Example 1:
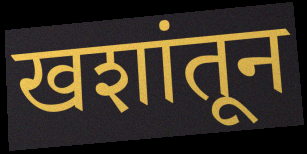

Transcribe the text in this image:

खशांतून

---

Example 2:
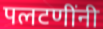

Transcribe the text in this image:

पलटणींनी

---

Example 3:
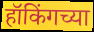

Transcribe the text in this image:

हॉकिंगच्या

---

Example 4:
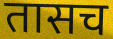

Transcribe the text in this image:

तासच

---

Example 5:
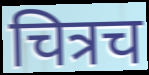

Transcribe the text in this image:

चित्रच